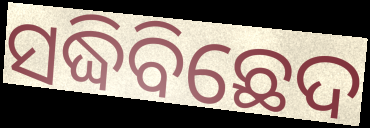
ସଦ୍ଧିବିଛେଦ